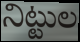
నిట్టుల